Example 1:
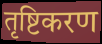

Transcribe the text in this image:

तृष्टिकरण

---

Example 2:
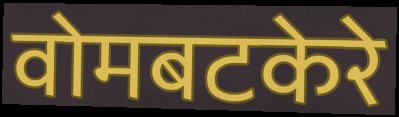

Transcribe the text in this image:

वोमबटकेरे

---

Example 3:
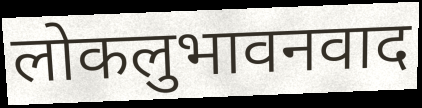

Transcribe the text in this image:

लोकलुभावनवाद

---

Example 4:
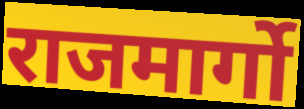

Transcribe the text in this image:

राजमार्गो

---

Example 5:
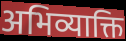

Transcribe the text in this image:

अभिव्याक्ति